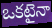
ఒకటైనా